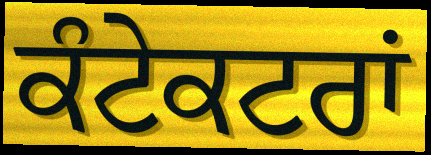
ਕੰਟੇਕਟਰਾਂ